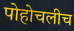
पोहोचलीच